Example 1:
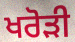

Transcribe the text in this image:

ਖਰੋੜੀ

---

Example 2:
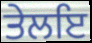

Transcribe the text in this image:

ਤੇਲਇ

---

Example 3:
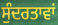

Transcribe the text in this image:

ਸੁੰਦਰਤਾਵਾਂ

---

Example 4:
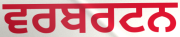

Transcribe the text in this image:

ਵਰਬਰਟਨ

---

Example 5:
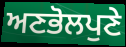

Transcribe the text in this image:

ਅਣਭੋਲਪੁਣੇ